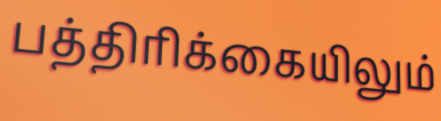
பத்திரிக்கையிலும்